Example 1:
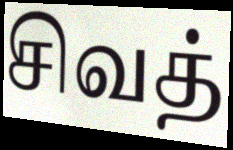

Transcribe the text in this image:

சிவத்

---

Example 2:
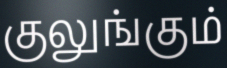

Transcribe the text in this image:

குலுங்கும்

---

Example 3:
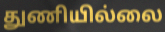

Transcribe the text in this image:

துணியில்லை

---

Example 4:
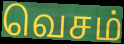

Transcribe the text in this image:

வெசம்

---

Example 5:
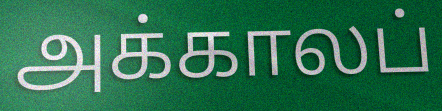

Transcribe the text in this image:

அக்காலப்